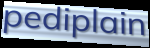
pediplain